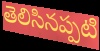
తెలిసినప్పటి